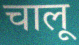
चालू